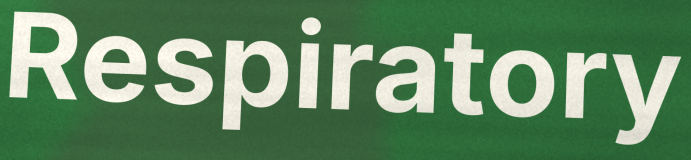
Respiratory